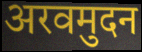
अरवमुदन